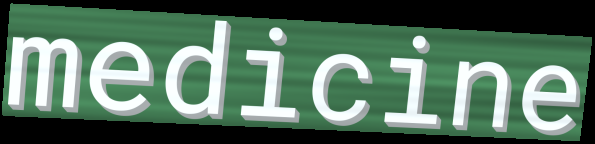
medicine